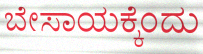
ಬೇಸಾಯಕ್ಕೆಂದು